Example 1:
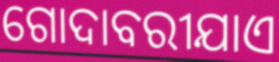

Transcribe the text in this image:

ଗୋଦାବରୀଯାଏ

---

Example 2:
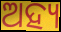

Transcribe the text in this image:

ଅହ୍ୟ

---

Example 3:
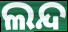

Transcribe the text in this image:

ଲନ୍ଦ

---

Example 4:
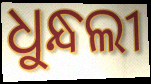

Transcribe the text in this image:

ଧୁନ୍ଧଲୀ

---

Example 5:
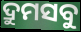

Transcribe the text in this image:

ଦ୍ରୁମସବୁ